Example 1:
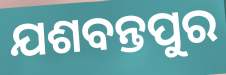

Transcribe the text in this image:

ଯଶବନ୍ତପୁର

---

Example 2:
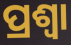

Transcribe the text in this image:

ପ୍ରଶ୍ଵା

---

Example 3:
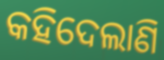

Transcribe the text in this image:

କହିଦେଲାଣି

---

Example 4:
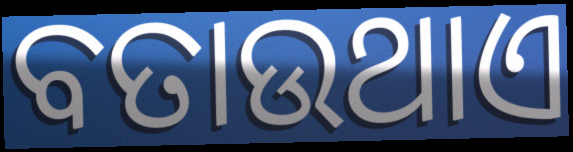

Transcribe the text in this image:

ବତାଉଥାଏ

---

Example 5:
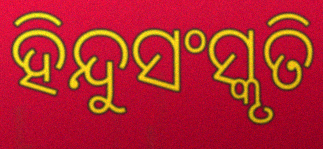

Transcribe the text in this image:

ହିନ୍ଦୁସଂସ୍କୃତି